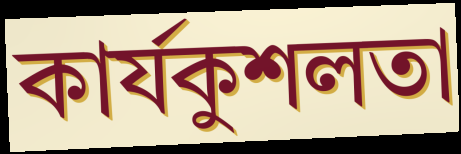
কাৰ্যকুশলতা